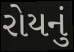
રોયનું